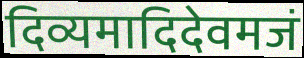
दिव्यमादिदेवमजं